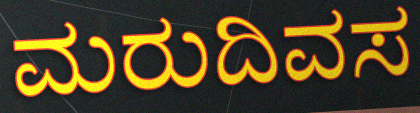
ಮರುದಿವಸ